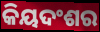
କିୟଦଂଶର